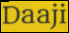
Daaji